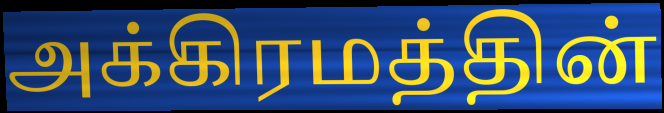
அக்கிரமத்தின்